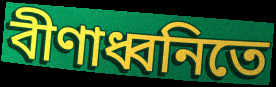
বীণাধ্বনিতে